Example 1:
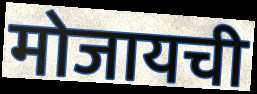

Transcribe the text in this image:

मोजायची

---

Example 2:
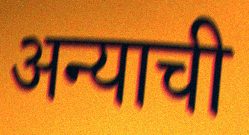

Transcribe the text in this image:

अन्याची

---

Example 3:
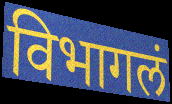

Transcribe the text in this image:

विभागलं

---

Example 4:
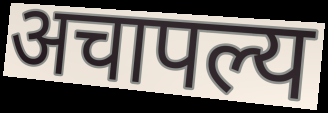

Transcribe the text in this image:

अचापल्य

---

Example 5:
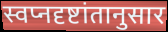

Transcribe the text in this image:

स्वप्नदृष्टांतानुसार